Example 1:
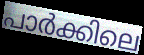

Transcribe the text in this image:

പാർക്കിലെ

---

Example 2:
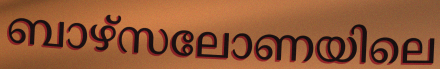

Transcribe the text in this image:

ബാഴ്സലോണയിലെ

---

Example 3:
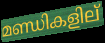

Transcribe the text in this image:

മണ്ഡികളില്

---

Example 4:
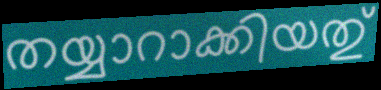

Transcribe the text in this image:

തയ്യാറാക്കിയതു്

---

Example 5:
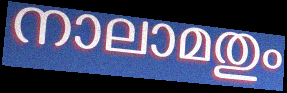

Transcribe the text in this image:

നാലാമതും